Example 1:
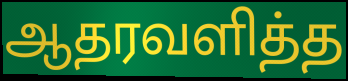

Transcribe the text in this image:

ஆதரவளித்த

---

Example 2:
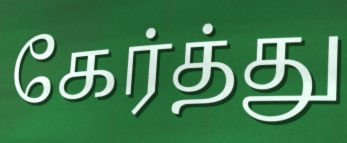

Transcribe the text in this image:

கேர்த்து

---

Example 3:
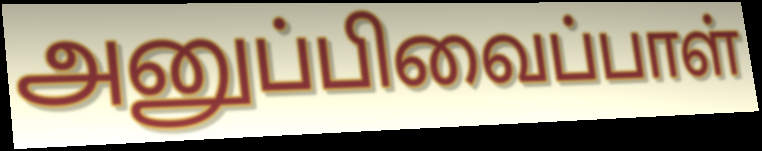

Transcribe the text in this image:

அனுப்பிவைப்பாள்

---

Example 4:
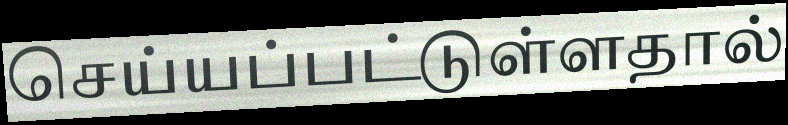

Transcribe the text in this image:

செய்யப்பட்டுள்ளதால்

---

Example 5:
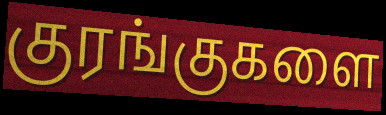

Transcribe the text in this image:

குரங்குகளை